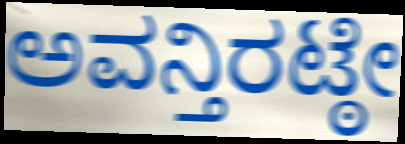
ಅವನ್ತಿರಟ್ಠೇ